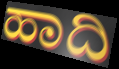
ಹಾದಿ